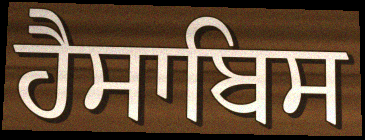
ਹੈਸਾਬਿਸ